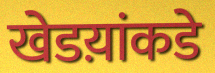
खेडय़ांकडे